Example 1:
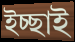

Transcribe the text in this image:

ইচ্ছাই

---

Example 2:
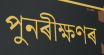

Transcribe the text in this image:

পুনৰীক্ষণৰ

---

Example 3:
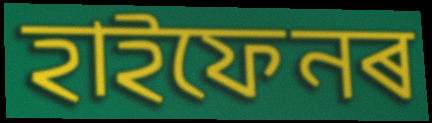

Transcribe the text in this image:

হাইফেনৰ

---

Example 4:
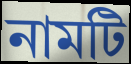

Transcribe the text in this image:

নামটি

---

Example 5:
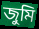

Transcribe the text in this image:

জুমি